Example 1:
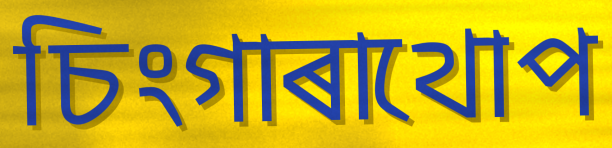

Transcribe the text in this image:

চিংগাৰাথোপ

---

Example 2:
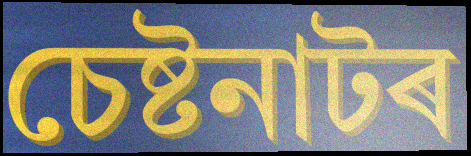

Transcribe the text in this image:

চেষ্টনাটৰ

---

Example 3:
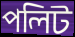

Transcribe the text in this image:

পলিট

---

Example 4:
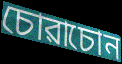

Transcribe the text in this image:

চোৱাচোন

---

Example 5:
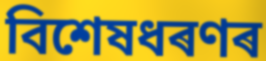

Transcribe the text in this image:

বিশেষধৰণৰ